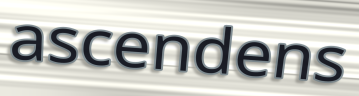
ascendens